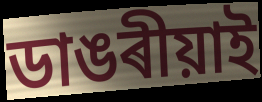
ডাঙৰীয়াই